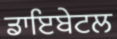
ਡਾਇਬੇਟਲ